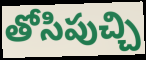
తోసిపుచ్చి